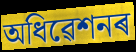
অধিৱেশনৰ